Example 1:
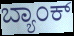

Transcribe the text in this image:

ಬ್ಯಾಂಕ್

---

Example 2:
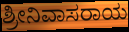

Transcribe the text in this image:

ಶ್ರೀನಿವಾಸರಾಯ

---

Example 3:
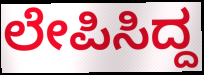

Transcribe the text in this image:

ಲೇಪಿಸಿದ್ದ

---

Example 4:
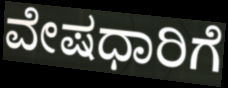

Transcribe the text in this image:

ವೇಷಧಾರಿಗೆ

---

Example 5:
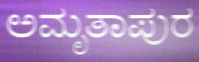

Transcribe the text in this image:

ಅಮೃತಾಪುರ